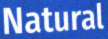
Natural